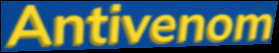
Antivenom